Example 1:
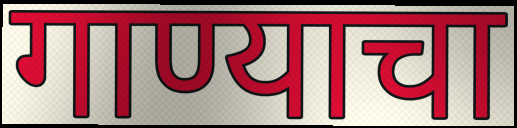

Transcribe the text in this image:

गाण्याचा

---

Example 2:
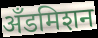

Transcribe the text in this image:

अँडमिशन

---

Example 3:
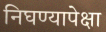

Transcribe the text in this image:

निघण्यापेक्षा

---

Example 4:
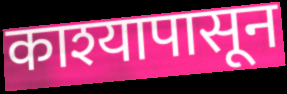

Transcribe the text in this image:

काश्यापासून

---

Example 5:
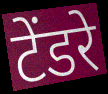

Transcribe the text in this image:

टेंडरे